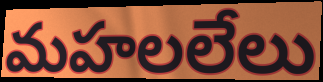
మహలలేలు